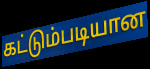
கட்டும்படியான